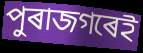
পুৰাজগৰেই